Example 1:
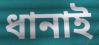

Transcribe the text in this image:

ধানাই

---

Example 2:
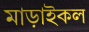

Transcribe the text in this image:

মাড়াইকল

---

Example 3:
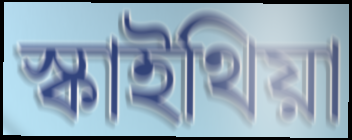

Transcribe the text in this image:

স্কাইথিয়া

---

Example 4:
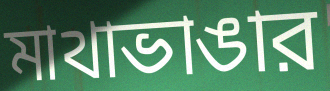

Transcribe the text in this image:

মাথাভাঙার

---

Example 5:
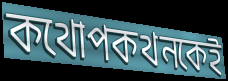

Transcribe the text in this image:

কথোপকথনকেই